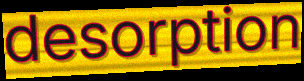
desorption